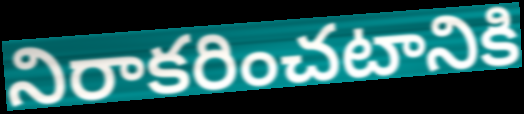
నిరాకరించటానికి